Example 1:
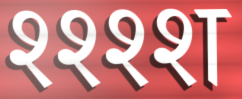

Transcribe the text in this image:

श्श्श्श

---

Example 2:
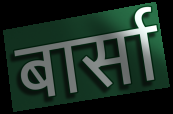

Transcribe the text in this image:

बार्सा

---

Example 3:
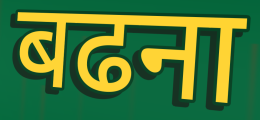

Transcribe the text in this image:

बढना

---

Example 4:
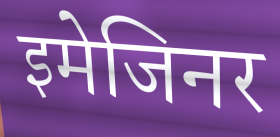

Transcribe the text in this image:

इमेजिनर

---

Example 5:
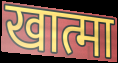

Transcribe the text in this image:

खात्मा